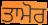
ਤਾਮੋਰ